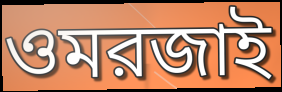
ওমরজাই